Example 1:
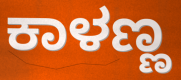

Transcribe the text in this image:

ಕಾಳಣ್ಣ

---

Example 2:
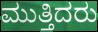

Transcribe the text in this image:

ಮುತ್ತಿದರು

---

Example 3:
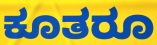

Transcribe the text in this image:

ಕೂತರೂ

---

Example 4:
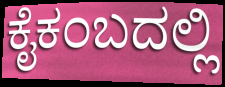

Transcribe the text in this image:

ಕೈಕಂಬದಲ್ಲಿ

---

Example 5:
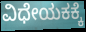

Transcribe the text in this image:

ವಿಧೇಯಕಕ್ಕೆ